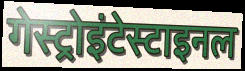
गेस्ट्रोइंटेस्टाइनल